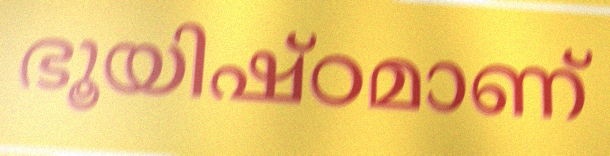
ഭൂയിഷ്ഠമാണ്